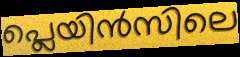
പ്ലെയിൻസിലെ